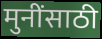
मुनींसाठी